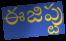
ఈజిప్టు